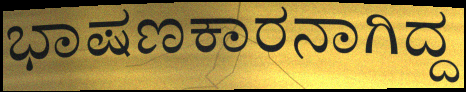
ಭಾಷಣಕಾರನಾಗಿದ್ದ